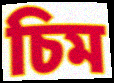
চিম